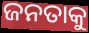
ଜନତାକୁ